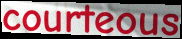
courteous